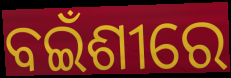
ବଇଁଶୀରେ